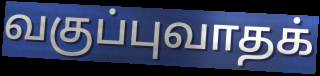
வகுப்புவாதக்